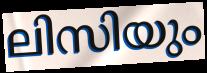
ലിസിയും